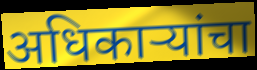
अधिकाऱ्यांचा